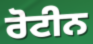
ਰੋਟੀਨ